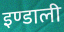
इण्डाली